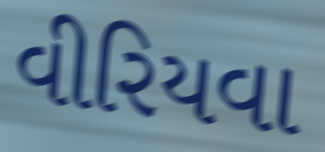
વીરિયવા